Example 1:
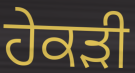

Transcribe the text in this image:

ਹੇਕੜੀ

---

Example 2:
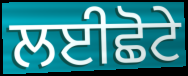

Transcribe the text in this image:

ਲਈਛੋਟੇ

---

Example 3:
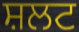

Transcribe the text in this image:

ਸ਼ਲਟ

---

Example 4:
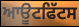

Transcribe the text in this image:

ਆਊਟਫਿੱਟਸ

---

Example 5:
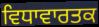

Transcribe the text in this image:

ਵਿਧਾਵਾਰਤਕ